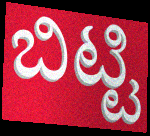
ಬಿಟ್ಟಿ